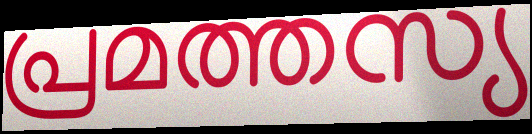
പ്രമത്തസ്യ